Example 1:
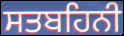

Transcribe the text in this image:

ਸਤਬਹਿਨੀ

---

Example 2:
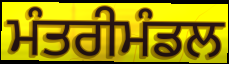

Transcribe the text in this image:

ਮੰਤਰੀਮੰਡਲ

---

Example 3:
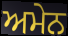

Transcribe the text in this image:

ਅਮੇਨ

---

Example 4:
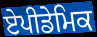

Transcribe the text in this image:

ਏਪੀਡੇਮਿਕ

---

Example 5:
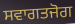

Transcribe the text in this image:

ਸਵਾਗਤਜੋਗ